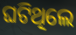
ଘଟିଥିଲେ